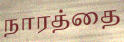
நாரத்தை